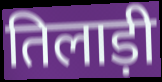
तिलाड़ी